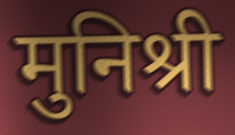
मुनिश्री